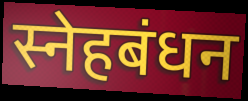
स्नेहबंधन